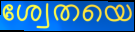
ശ്വേതയെ